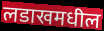
लडाखमधील